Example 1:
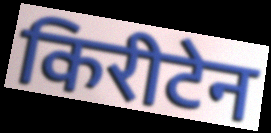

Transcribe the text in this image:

किरीटेन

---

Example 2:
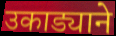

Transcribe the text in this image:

उकाड्याने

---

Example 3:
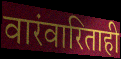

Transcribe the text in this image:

वारंवारिताही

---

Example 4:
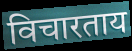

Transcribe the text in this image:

विचारताय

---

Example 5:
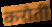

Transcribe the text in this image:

करोती